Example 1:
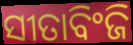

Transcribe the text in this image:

ସୀତାବିଂଜି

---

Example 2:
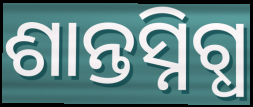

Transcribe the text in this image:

ଶାନ୍ତସ୍ନିଗ୍ଧ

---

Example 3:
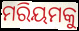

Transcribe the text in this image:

ମରିୟମକୁ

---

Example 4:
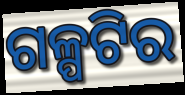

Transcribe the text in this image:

ଗଳ୍ପଟିର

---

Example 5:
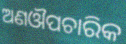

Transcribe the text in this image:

ଅଣଔପଚାରିକ